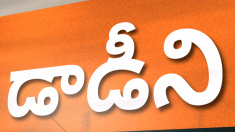
డాడీని